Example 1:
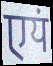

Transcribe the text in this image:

एयं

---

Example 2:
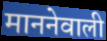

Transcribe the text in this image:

माननेवाली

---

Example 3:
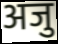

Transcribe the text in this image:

अजु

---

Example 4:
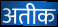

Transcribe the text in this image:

अतीक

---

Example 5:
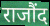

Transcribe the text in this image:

राजौंद